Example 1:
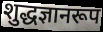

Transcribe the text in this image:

शुद्धज्ञानरूप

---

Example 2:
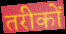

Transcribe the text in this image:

तरीकों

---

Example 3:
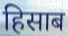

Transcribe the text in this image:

हिसाब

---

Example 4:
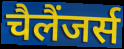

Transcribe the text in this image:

चैलैंजर्स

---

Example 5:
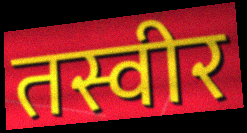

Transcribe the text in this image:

तस्वीर